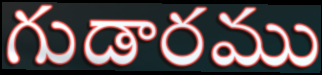
గుడారము